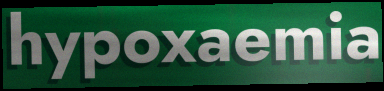
hypoxaemia